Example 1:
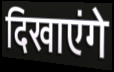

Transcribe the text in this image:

दिखाएंगे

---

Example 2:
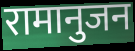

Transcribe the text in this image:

रामानुजन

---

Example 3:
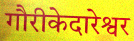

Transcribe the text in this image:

गौरीकेदारेश्वर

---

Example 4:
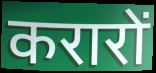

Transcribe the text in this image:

करारों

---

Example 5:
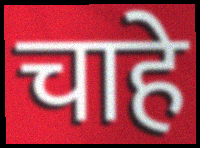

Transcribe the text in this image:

चाहे